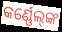
କର୍ଣ୍ଣେଲ୍‌ଙ୍କ